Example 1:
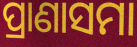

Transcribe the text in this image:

ପ୍ରାଣାସମା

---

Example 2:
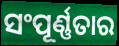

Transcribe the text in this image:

ସଂପୂର୍ଣ୍ଣତାର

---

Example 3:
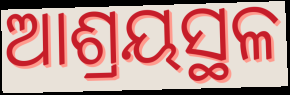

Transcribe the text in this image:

ଆଶ୍ରୟସ୍ଥଳ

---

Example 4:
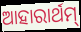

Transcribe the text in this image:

ଆହାରାର୍ଥମ୍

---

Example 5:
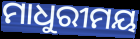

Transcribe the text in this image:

ମାଧୁରୀମୟ